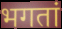
भगतां